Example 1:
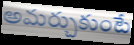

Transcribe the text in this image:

అమర్చుకుంటే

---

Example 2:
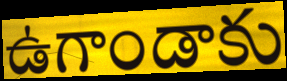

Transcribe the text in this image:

ఉగాండాకు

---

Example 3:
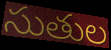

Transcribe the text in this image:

సుతుల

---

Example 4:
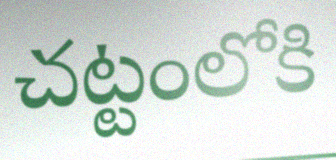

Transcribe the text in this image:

చట్టంలోకి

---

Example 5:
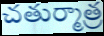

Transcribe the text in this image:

చతుర్మాత్ర